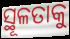
ସ୍ଥୂଳତାକୁ